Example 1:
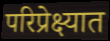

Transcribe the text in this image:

परिप्रेक्ष्यात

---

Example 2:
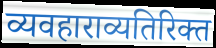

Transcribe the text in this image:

व्यवहाराव्यतिरिक्त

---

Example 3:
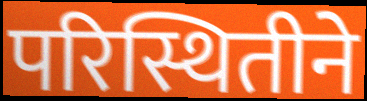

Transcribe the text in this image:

परिस्थितीने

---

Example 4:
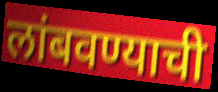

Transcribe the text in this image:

लांबवण्याची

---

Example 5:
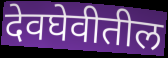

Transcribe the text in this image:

देवघेवीतील